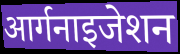
आर्गनाइजेशन